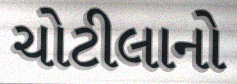
ચોટીલાનો